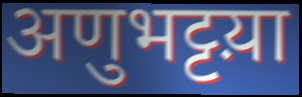
अणुभट्टय़ा